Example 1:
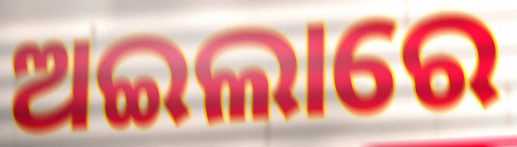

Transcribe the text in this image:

ଅଇଲାରେ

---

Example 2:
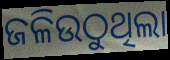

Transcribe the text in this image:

ଜଳିଉଠୁଥିଲା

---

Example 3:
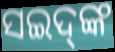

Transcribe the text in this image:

ସଇଦ୍‌ଙ୍କ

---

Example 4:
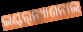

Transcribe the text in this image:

ଇଣ୍ଟର୍‌ନ୍ୟାଶନାଲ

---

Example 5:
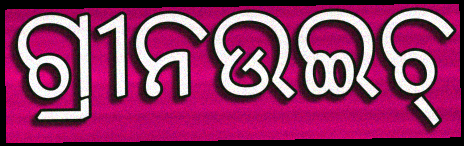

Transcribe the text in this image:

ଗ୍ରୀନଉଇଚ୍